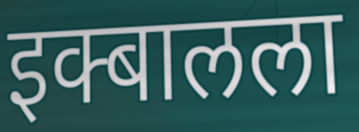
इक्बालला